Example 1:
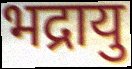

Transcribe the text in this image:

भद्रायु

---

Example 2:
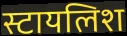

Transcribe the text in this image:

स्टायलिश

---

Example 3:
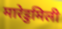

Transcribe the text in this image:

मारेडुमिली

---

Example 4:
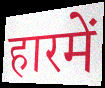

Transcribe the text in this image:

हारमें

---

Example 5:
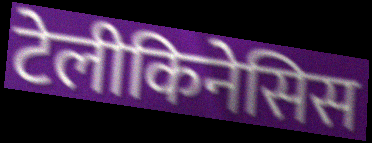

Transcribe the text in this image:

टेलीकिनेसिस